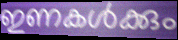
ഇണകൾക്കും